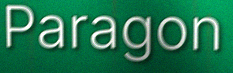
Paragon